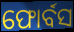
ଫୋର୍ବସ